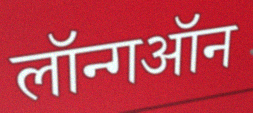
लॉन्गऑन